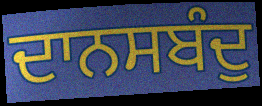
ਦਾਨਸਬੰਦੁ